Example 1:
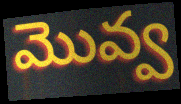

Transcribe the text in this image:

మొవ్వ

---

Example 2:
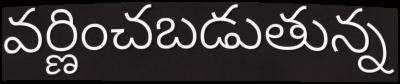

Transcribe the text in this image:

వర్ణించబడుతున్న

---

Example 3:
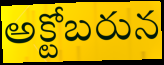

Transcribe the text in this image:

అక్టోబరున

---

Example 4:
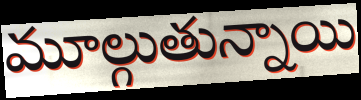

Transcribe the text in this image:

మూల్గుతున్నాయి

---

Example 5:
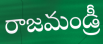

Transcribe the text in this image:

రాజమండ్రీ